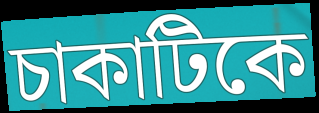
চাকাটিকে